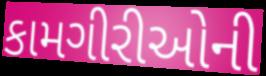
કામગીરીઓની